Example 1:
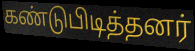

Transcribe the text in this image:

கண்டுபிடித்தனர்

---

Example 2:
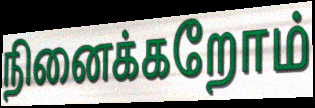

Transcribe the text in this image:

நினைக்கறோம்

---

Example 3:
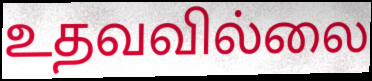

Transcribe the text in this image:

உதவவில்லை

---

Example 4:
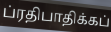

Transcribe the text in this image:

ப்ரதிபாதிக்கப்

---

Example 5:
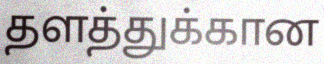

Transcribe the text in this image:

தளத்துக்கான